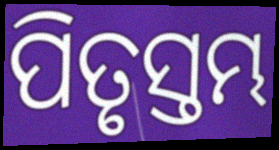
ପିତୃସ୍ତମ୍ଭ